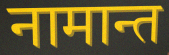
नामान्त